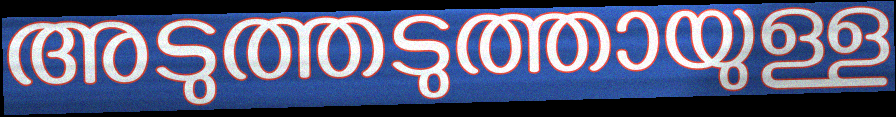
അടുത്തടുത്തായുള്ള